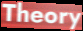
Theory